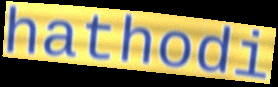
hathodi